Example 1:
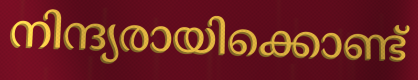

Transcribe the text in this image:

നിന്ദ്യരായിക്കൊണ്ട്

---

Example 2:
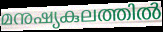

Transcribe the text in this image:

മനുഷ്യകുലത്തിൽ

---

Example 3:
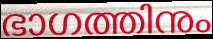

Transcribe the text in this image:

ഭാഗത്തിനും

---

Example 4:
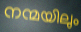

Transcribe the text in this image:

നന്മയിലും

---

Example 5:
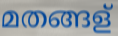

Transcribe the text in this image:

മതങ്ങള്